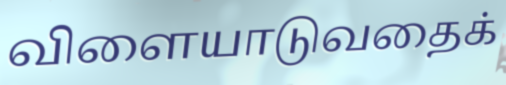
விளையாடுவதைக்